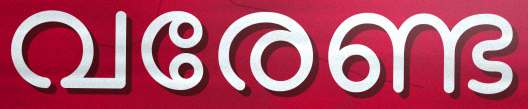
വരേണ്ട